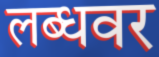
लब्धवर